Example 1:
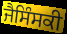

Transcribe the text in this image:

ਜੈਸਿੰਸਕੀ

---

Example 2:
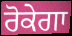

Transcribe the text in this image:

ਰੋਕੇਗਾ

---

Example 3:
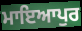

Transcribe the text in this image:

ਮਾਇਆਪੁਰ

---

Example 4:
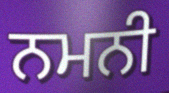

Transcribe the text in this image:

ਨਮਨੀ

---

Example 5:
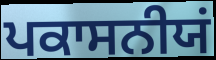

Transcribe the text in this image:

ਪਕਾਸਨੀਯਂ